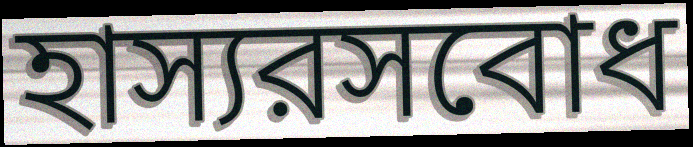
হাস্যরসবোধ